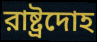
রাষ্ট্রদোহ